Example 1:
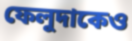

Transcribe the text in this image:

ফেলুদাকেও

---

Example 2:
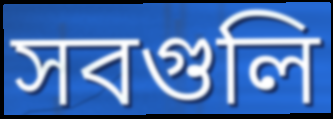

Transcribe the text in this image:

সবগুলি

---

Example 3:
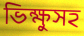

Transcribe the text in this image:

ভিক্ষুসহ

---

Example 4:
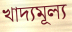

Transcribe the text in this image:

খাদ্যমূল্য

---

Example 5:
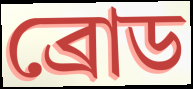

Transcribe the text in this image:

ব্রোড